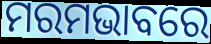
ମରମଭାବରେ